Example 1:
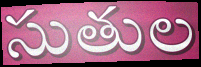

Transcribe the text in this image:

సుతుల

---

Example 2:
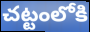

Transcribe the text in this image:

చట్టంలోకి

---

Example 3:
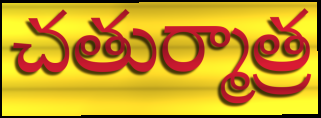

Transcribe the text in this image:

చతుర్మాత్ర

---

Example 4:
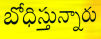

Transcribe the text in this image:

బోధిస్తున్నారు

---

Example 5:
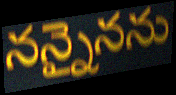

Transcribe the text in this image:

నన్నైనను